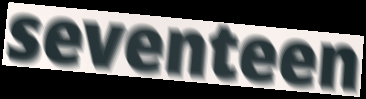
seventeen